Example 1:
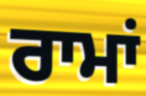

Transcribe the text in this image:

ਰਾਮਾਂ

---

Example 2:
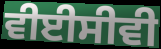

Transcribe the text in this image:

ਵੀਈਸੀਵੀ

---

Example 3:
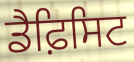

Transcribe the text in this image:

ਡੈਫ਼ਿਸਿਟ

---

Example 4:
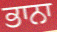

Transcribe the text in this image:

ਭਾਨਾ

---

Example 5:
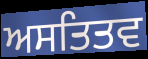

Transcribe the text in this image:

ਅਸਤਿਤਵ